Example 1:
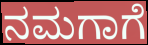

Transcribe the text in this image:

ನಮಗಾಗೆ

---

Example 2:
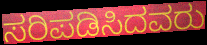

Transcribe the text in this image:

ಸರಿಪಡಿಸಿದವರು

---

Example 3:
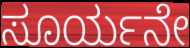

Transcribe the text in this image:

ಸೂರ್ಯನೇ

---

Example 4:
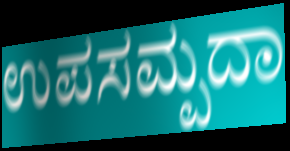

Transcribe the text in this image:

ಉಪಸಮ್ಪದಾ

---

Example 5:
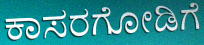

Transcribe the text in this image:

ಕಾಸರಗೋಡಿಗೆ